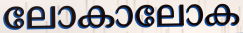
ലോകാലോക